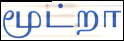
மூட்றா